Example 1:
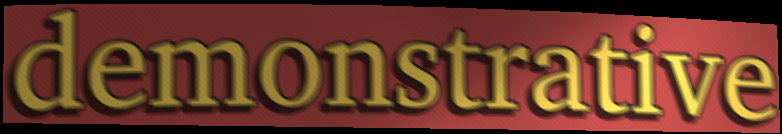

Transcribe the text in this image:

demonstrative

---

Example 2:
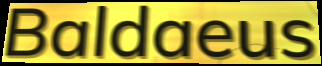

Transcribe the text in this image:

Baldaeus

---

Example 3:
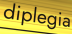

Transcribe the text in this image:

diplegia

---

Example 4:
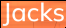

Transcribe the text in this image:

Jacks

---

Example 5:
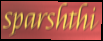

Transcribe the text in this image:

sparshthi